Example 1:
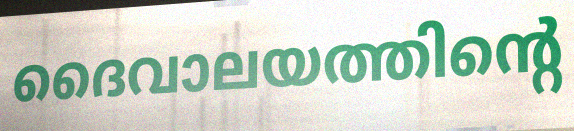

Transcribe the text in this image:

ദൈവാലയത്തിന്റെ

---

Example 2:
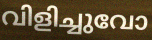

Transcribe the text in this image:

വിളിച്ചുവോ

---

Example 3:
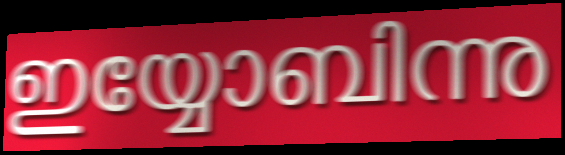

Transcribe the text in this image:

ഇയ്യോബിന്നു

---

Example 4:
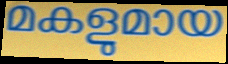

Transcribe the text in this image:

മകളുമായ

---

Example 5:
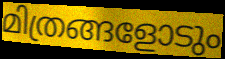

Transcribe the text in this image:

മിത്രങ്ങളോടും